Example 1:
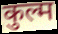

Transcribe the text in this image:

कुल्म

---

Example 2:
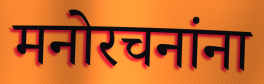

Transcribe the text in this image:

मनोरचनांना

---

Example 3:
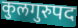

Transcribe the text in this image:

कुलगुरुपद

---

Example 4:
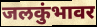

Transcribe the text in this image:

जलकुंभावर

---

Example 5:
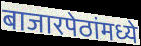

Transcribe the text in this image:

बाजारपेठांमध्ये